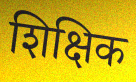
शिक्षिक